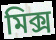
মিক্স